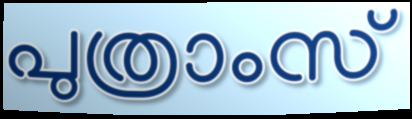
പുത്രാംസ്